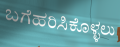
ಬಗೆಹರಿಸಿಕೊಳ್ಳಲು